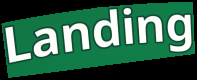
Landing